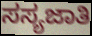
ಸಸ್ಯಜಾತಿ